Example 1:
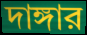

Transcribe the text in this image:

দাঙ্গার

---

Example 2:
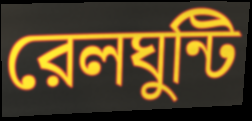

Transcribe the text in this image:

রেলঘুন্টি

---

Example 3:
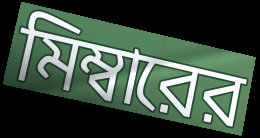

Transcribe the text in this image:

মিম্বারের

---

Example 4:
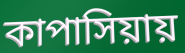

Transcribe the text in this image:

কাপাসিয়ায়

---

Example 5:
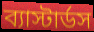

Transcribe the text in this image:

ব্যাস্টার্ডস